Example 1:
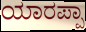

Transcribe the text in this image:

ಯಾರಪ್ಪಾ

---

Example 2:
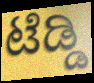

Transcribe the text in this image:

ಟೆಡ್ಡಿ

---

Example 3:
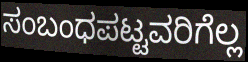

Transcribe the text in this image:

ಸಂಬಂಧಪಟ್ಟವರಿಗೆಲ್ಲ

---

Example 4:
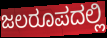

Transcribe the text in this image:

ಜಲರೂಪದಲ್ಲಿ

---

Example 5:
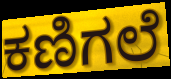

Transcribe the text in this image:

ಕಣಿಗಲೆ